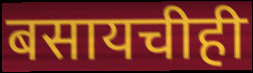
बसायचीही